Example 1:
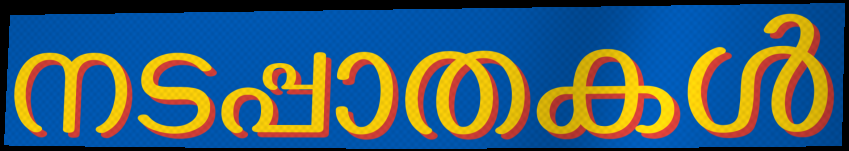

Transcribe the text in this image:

നടപ്പാതകൾ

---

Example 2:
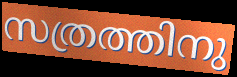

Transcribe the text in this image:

സത്രത്തിനു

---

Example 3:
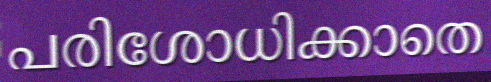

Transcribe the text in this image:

പരിശോധിക്കാതെ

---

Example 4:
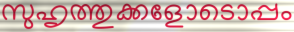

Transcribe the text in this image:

സുഹൃത്തുക്കളോടൊപ്പം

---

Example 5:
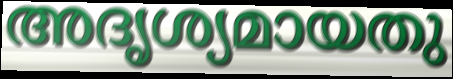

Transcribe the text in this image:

അദൃശ്യമായതു